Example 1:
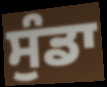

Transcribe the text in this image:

ਸੁੰਡਾ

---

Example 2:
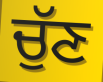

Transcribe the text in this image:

ਚੁੱਣ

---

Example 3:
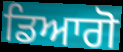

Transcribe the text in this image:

ਡਿਆਗੋ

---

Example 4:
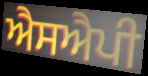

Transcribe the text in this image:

ਐਸਐਪੀ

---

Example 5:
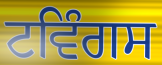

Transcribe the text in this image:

ਟਵਿੰਗਸ